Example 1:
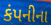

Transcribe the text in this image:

કંપનીના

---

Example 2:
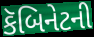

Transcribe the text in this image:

કૅબિનેટની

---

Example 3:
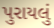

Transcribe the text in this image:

પુરાયલું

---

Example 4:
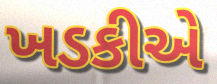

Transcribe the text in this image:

ખડકીએ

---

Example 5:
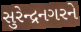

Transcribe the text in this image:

સુરેન્દ્રનગરને